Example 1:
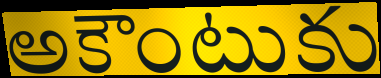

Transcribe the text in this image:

అకౌంటుకు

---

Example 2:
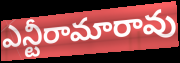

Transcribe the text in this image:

ఎన్టీరామారావు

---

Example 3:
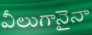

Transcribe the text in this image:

వీలుగానైనా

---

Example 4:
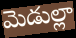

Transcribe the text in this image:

మెడుల్లా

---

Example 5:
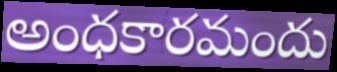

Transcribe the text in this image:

అంధకారమందు